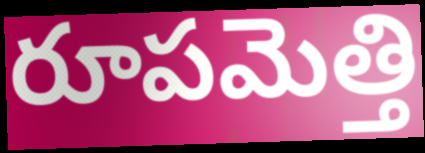
రూపమెత్తి